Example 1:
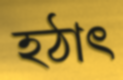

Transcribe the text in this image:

হঠাৎ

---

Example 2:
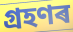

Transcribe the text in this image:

গ্ৰহণৰ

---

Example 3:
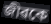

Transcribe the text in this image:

জীৱকে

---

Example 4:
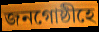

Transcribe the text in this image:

জনগোষ্ঠীহে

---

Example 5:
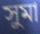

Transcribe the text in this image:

সুমা